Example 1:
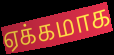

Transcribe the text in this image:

ஏக்கமாக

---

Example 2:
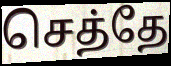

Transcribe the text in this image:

செத்தே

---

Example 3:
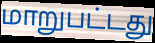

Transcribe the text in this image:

மாறுபட்டது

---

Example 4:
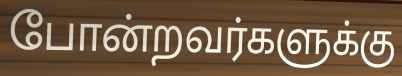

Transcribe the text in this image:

போன்றவர்களுக்கு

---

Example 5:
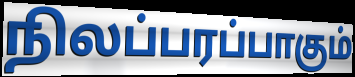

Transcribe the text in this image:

நிலப்பரப்பாகும்